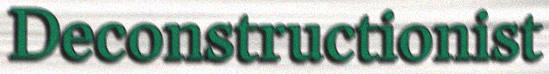
Deconstructionist